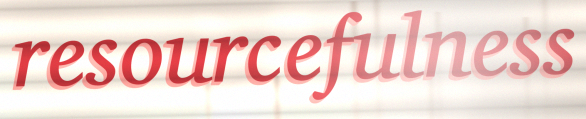
resourcefulness